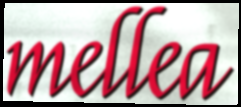
mellea